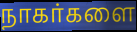
நாகர்களை